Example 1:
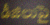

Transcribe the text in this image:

డీజిలుపై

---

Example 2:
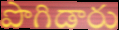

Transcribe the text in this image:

పొగిడారు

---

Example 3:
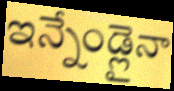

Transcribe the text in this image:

ఇన్నేండ్లైనా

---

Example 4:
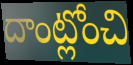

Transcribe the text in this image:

దాంట్లోంచి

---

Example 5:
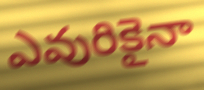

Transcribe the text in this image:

ఎవురికైనా